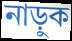
নাড়ুক